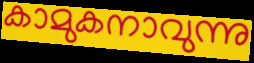
കാമുകനാവുന്നു